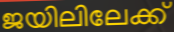
ജയിലിലേക്ക്